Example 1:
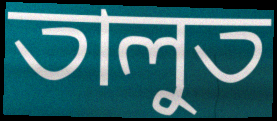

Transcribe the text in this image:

তালুত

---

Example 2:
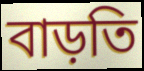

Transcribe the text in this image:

বাড়তি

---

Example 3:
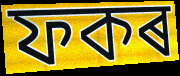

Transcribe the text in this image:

ফকৰ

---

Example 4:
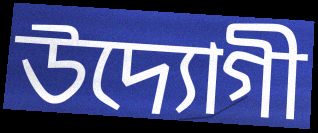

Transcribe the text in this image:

উদ্যোগী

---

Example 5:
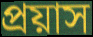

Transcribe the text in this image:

প্ৰয়াস